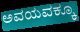
ಅವಯವಕ್ಕೂ